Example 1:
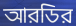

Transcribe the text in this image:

আরডির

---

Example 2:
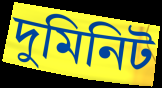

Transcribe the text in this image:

দুমিনিট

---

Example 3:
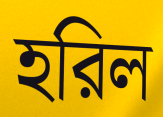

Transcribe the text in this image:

হরিল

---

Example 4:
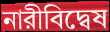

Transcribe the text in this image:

নারীবিদ্বেষ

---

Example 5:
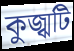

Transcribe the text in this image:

কুজ্ঝটি